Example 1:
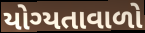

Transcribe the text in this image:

યોગ્યતાવાળો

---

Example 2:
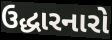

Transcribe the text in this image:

ઉદ્ધારનારો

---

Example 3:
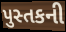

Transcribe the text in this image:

પુસ્તકની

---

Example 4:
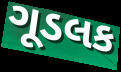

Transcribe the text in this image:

ગૂડલક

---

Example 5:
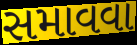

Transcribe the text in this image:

સમાવવા